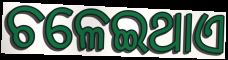
ଚଳେଇଥାଏ